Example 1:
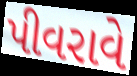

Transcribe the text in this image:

પીવરાવે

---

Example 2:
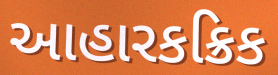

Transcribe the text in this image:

આહારકક્રિક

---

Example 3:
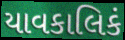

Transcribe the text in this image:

યાવકાલિકં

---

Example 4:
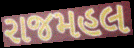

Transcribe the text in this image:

રાજમહલ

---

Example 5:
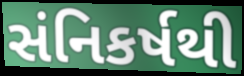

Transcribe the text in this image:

સંનિકર્ષથી